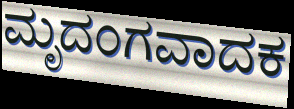
ಮೃದಂಗವಾದಕ